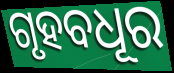
ଗୃହବଧୂର